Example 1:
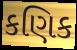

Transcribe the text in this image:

કણિક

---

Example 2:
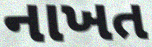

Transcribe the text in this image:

નાખત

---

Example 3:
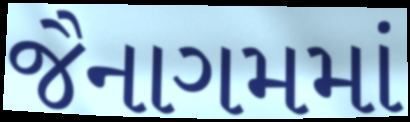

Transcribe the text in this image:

જૈનાગમમાં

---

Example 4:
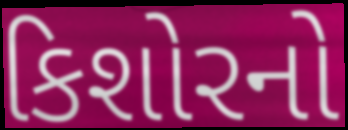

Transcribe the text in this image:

કિશોરનો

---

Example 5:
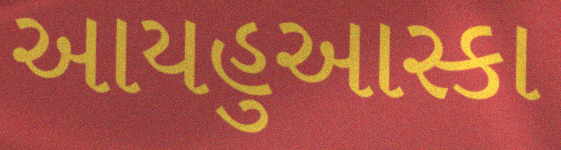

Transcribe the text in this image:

આયહુઆસ્કા